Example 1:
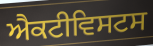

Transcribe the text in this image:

ਐਕਟੀਵਿਸਟਸ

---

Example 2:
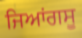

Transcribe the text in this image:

ਜਿਆਂਗਸੂ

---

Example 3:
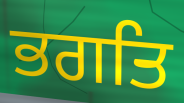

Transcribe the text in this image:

ਭਗਤਿ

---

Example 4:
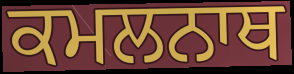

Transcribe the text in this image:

ਕਮਲਨਾਥ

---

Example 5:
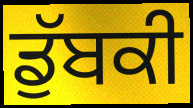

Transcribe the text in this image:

ਡੁੱਬਕੀ